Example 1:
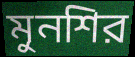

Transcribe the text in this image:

মুনশির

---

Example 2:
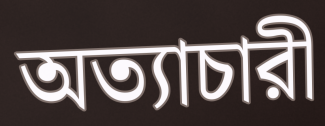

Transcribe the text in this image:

অত্যাচারী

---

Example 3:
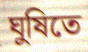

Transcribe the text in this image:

ঘুষিতে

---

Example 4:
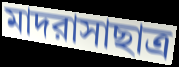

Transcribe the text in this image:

মাদরাসাছাত্র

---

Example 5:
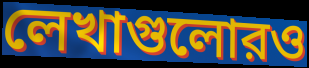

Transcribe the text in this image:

লেখাগুলোরও